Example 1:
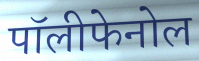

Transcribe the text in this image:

पॉलीफेनोल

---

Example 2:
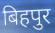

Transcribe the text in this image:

बिहपुर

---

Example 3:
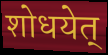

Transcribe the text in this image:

शोधयेत्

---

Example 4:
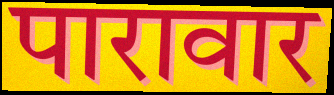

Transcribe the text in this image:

पारावार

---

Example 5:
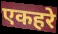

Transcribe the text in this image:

एकहरे